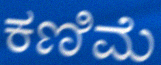
ಕಣಿಮೆ